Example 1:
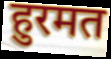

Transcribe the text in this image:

हुरमत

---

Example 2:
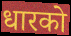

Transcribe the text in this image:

धारको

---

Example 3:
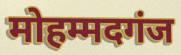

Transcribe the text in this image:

मोहम्मदगंज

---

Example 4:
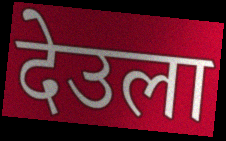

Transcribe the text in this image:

देउला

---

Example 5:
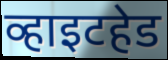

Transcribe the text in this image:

व्हाइटहेड